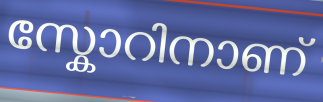
സ്കോറിനാണ്